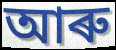
আৰু